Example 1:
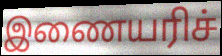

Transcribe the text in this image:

இணையரிச்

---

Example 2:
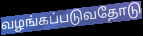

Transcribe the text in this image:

வழங்கப்படுவதோடு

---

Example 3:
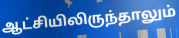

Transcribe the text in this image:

ஆட்சியிலிருந்தாலும்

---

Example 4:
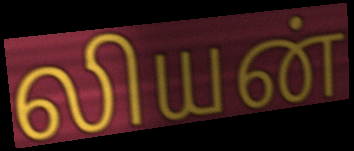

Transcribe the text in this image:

லியன்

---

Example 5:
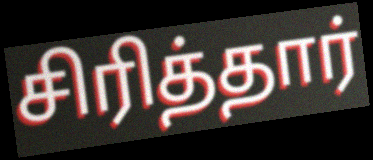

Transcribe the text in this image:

சிரித்தார்